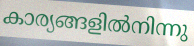
കാര്യങ്ങളിൽനിന്നു